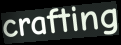
crafting